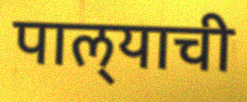
पाल्याची